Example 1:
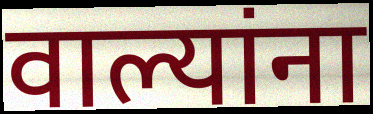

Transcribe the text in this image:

वाल्यांना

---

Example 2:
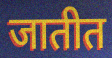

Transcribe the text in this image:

जातीत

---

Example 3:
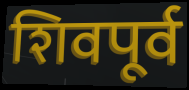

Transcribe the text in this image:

शिवपूर्व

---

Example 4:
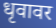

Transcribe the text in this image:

धृवावर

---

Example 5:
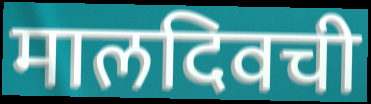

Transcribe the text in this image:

मालदिवची